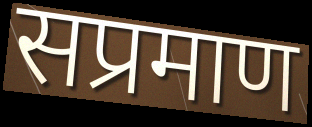
सप्रमाण